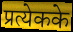
प्रत्येकके